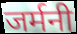
जर्मनी